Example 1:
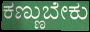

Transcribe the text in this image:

ಕಣ್ಣುಬೇಕು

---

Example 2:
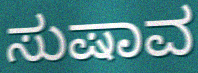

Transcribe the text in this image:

ಸುಷಾವ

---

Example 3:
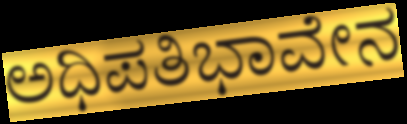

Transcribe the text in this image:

ಅಧಿಪತಿಭಾವೇನ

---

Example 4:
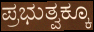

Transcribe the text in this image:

ಪ್ರಭುತ್ವಕ್ಕೂ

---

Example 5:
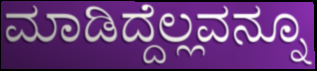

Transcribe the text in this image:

ಮಾಡಿದ್ದೆಲ್ಲವನ್ನೂ